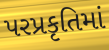
પરપ્રકૃતિમાં